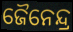
ଜୈନେନ୍ଦ୍ର